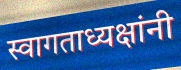
स्वागताध्यक्षांनी